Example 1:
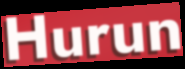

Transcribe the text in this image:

Hurun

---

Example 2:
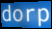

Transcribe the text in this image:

dorp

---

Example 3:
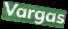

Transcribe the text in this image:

Vargas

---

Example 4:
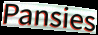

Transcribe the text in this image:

Pansies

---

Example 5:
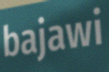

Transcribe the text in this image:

bajawi